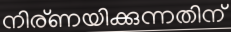
നിര്ണയിക്കുന്നതിന്